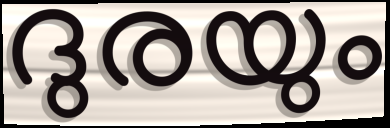
ദുരയും